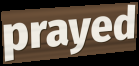
prayed